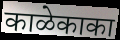
काळेकाका